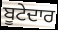
ਬੂਟੇਦਾਰ